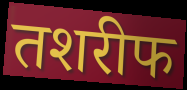
तशरीफ